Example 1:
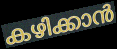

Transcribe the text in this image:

കഴിക്കാൻ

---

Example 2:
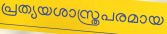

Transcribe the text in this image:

പ്രത്യയശാസ്ത്രപരമായ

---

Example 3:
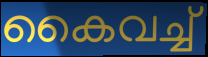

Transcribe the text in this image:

കൈവച്ച്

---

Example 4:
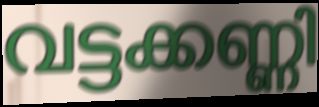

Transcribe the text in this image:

വട്ടക്കണ്ണി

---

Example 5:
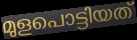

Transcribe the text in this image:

മുളപൊട്ടിയത്